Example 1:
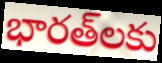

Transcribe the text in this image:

భారత్‌లకు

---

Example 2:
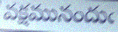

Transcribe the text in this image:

వక్షమునందుఁ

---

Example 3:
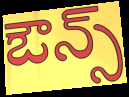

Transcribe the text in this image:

ఔన్స్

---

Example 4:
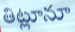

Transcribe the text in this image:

తిట్లూనూ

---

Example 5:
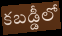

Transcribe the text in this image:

కబడ్డీలో